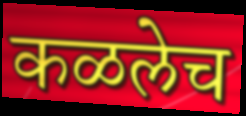
कळलेच